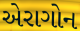
એરાગોન